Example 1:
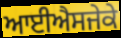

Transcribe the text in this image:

ਆਈਐਸਜੇਕੇ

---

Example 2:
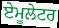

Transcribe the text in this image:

ਏਮੂਲੇਟਰ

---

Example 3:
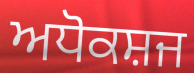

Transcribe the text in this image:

ਅਧੋਕਸ਼ਜ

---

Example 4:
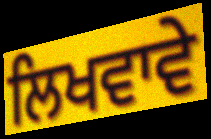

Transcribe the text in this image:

ਲਿਖਵਾਵੇ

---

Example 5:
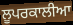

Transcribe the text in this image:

ਲੂਪਰਕਾਲੀਆ